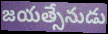
జయత్సేనుడు